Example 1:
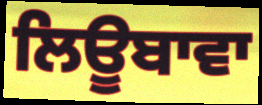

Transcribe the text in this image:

ਲਿਊਬਾਵਾ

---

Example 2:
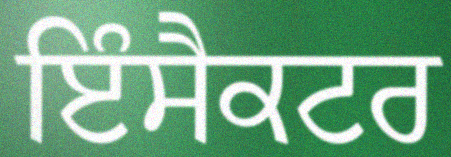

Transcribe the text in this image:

ਇੰਸੈਕਟਰ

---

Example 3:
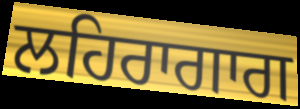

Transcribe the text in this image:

ਲਹਿਰਾਗਾਗ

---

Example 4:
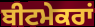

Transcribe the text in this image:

ਬੀਟਮੇਕਰਾਂ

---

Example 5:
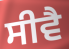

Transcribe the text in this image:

ਸੀਵੈ